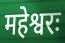
महेश्वरः